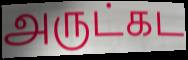
அருட்கட